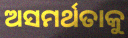
ଅସମର୍ଥତାକୁ